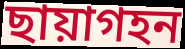
ছায়াগহন